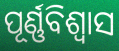
ପୂର୍ଣ୍ଣବିଶ୍ଵାସ